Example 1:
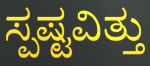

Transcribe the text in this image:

ಸ್ಪಷ್ಟವಿತ್ತು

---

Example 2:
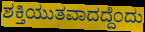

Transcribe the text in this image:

ಶಕ್ತಿಯುತವಾದದ್ದೆಂದು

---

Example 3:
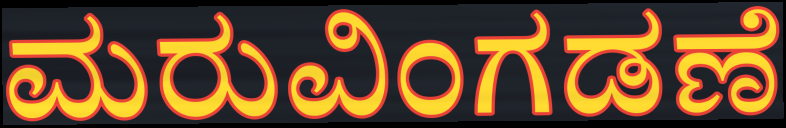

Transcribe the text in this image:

ಮರುವಿಂಗಡಣೆ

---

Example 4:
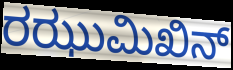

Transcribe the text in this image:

ರಝುಮಿಖಿನ್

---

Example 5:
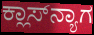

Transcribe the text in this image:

ಕ್ಲಾಸ್‌ನ್ಯಾಗ